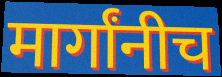
मार्गांनीच